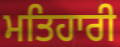
ਮਤਿਹਾਰੀ